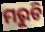
ମରୁଡି